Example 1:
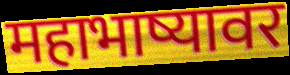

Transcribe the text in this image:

महाभाष्यावर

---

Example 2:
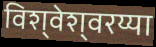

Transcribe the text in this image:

विश्वेश्वरय्या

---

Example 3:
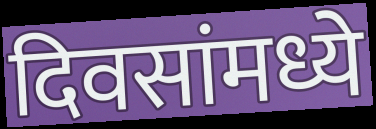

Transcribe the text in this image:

दिवसांमध्ये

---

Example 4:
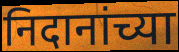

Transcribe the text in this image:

निदानांच्या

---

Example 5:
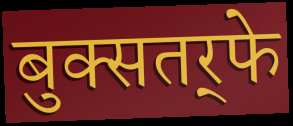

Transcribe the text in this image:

बुक्सतर्फे